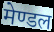
मेण्डल